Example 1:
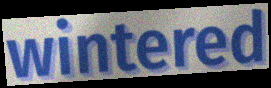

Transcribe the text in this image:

wintered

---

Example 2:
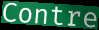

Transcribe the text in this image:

Contre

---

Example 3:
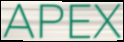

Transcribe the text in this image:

APEX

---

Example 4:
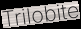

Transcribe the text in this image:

Trilobite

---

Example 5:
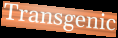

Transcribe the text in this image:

Transgenic